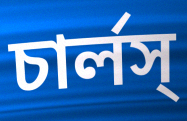
চার্লস্